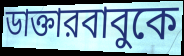
ডাক্তারবাবুকে